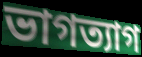
ভাগত্যাগ